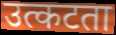
उत्कटता